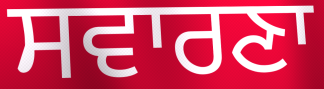
ਸਵਾਰਣਾ